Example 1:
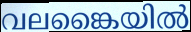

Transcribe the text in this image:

വലങ്കൈയിൽ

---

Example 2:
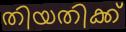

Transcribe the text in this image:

തിയതിക്ക്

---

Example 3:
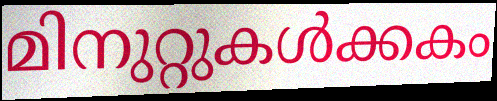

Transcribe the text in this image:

മിനുറ്റുകൾക്കകം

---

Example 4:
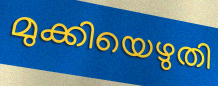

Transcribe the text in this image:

മുക്കിയെഴുതി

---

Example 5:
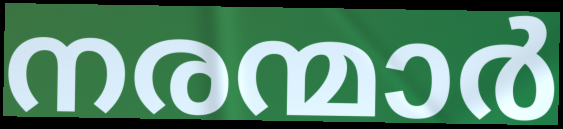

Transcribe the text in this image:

നരന്മാർ